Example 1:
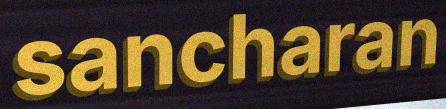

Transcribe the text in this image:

sancharan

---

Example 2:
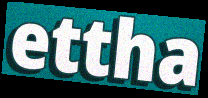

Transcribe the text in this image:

ettha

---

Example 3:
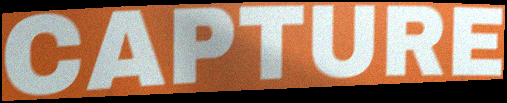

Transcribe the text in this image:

CAPTURE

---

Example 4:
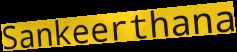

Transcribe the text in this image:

Sankeerthana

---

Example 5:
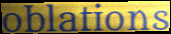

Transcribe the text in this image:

oblations